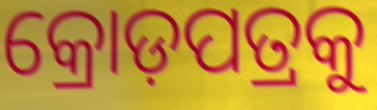
କ୍ରୋଡ଼ପତ୍ରକୁ